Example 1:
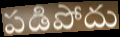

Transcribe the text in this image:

పడిపోదు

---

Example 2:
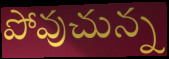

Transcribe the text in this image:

పోవుచున్న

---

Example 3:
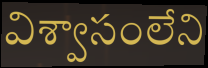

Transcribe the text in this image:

విశ్వాసంలేని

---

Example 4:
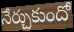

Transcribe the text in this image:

నేర్చుకుందో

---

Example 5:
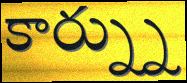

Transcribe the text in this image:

కార్న్ను